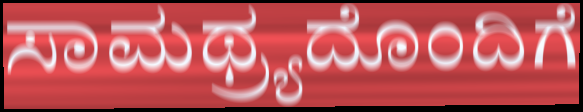
ಸಾಮಥ್ರ್ಯದೊಂದಿಗೆ